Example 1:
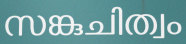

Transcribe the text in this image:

സങ്കുചിത്വം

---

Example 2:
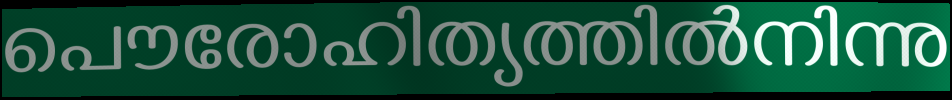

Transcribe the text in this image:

പൌരോഹിത്യത്തിൽനിന്നു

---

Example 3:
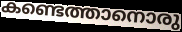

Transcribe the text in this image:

കണ്ടെത്താനൊരു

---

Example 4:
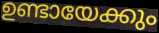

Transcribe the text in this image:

ഉണ്ടായേക്കും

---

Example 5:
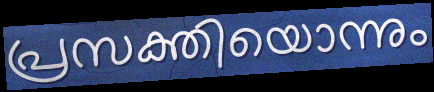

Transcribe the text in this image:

പ്രസക്തിയൊന്നും